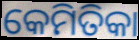
କେମିତିକା